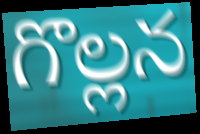
గొల్లన